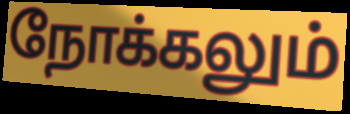
நோக்கலும்